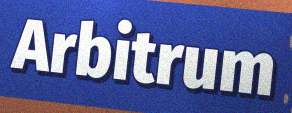
Arbitrum